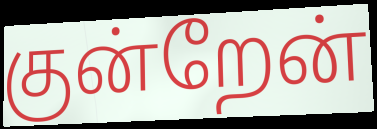
குன்றேன்